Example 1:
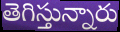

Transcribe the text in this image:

తెగిస్తున్నారు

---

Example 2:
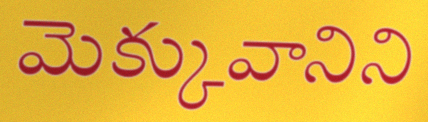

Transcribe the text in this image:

మెక్కువానిని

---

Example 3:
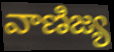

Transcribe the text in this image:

వాణిజ్య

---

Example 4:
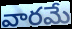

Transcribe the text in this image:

వారమే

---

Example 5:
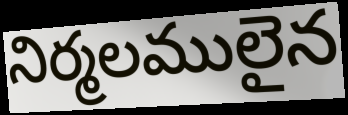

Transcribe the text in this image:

నిర్మలములైన